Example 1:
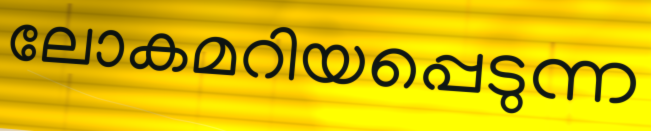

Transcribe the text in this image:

ലോകമറിയപ്പെടുന്ന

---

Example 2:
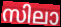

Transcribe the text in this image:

സിലാ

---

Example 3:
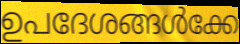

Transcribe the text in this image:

ഉപദേശങ്ങൾക്കേ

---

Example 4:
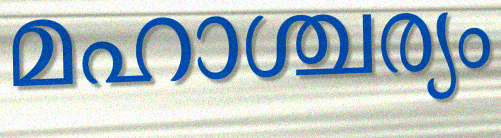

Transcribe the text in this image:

മഹാശ്ചര്യം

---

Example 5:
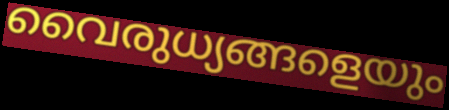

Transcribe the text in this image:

വൈരുധ്യങ്ങളെയും